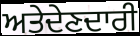
ਅਤੇਦੇਣਦਾਰੀ